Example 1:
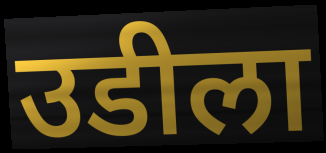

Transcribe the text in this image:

उडीला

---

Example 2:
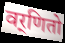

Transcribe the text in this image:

वर्णितो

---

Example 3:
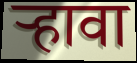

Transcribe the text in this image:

र्‍हावा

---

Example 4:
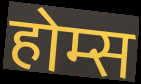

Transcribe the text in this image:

होम्स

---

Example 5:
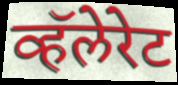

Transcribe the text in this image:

व्हॅलेरेट